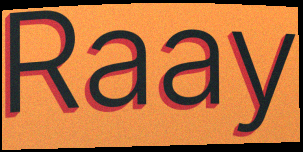
Raay